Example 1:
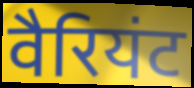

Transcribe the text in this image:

वैरियंट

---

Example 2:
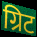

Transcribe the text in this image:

ग्रिट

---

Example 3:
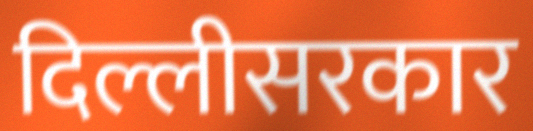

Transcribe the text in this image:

दिल्लीसरकार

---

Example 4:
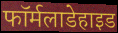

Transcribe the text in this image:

फॉर्मलाडेहाइड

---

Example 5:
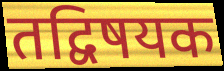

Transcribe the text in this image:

तद्विषयक